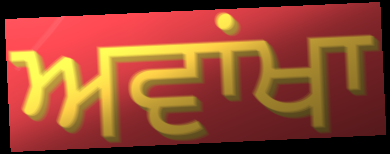
ਅਵਾਂਖਾ